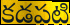
కడపటి